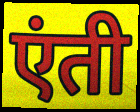
एंती